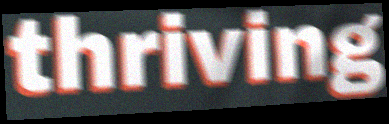
thriving